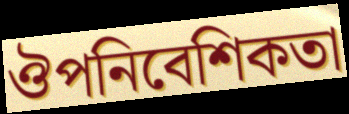
ঔপনিবেশিকতা